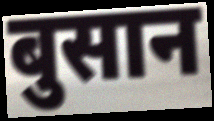
बुसान